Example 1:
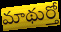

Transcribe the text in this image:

మాథుర్తో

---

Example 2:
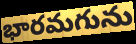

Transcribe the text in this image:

భారమగును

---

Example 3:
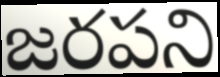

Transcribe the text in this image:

జరపని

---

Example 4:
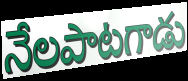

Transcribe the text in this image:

నేలపాటగాడు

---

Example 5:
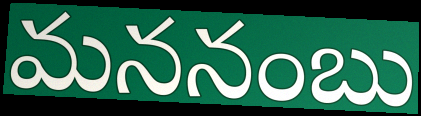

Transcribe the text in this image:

మననంబు